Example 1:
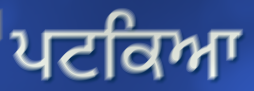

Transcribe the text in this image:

ਪਟਕਿਆ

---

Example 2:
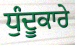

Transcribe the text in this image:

ਧੁੰਦੂਕਾਰੇ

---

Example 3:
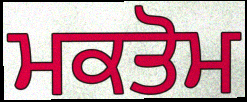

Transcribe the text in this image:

ਮਕਤੋਮ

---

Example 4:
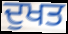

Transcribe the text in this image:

ਦੁਖਤ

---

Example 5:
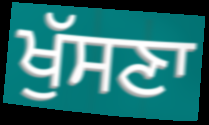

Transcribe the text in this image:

ਖੁੱਸਣਾ